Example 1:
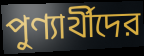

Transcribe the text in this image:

পুণ্যার্থীদের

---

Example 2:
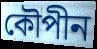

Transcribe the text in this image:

কৌপীন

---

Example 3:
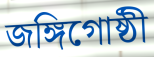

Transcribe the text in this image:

জঙ্গিগোষ্ঠী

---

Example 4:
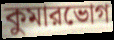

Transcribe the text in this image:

কুমারভোগ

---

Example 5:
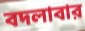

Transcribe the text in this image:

বদলাবার